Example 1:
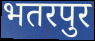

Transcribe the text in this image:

भतरपुर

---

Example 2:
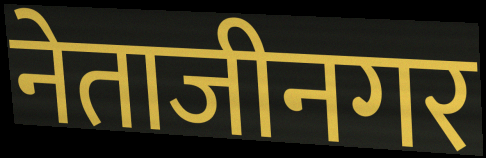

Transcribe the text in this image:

नेताजीनगर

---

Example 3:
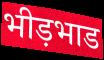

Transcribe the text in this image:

भीड़भाड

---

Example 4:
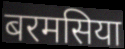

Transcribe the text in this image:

बरमसिया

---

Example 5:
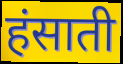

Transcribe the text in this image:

हंसाती